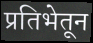
प्रतिभेतून